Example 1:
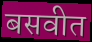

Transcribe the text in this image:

बसवीत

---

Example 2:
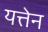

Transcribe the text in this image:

यत्तेन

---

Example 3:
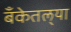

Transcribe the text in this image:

बँकेतल्या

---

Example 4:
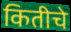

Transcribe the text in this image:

कितीचे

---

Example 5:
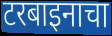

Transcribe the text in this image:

टरबाइनाचा